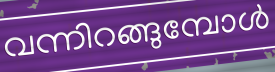
വന്നിറങ്ങുമ്പോൾ